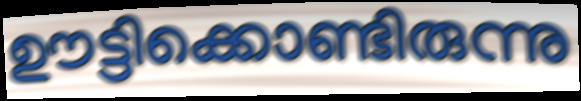
ഊട്ടിക്കൊണ്ടിരുന്നു